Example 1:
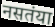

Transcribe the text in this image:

नसतंया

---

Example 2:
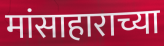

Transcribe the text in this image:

मांसाहाराच्या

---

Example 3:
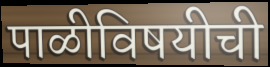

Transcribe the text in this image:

पाळीविषयीची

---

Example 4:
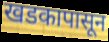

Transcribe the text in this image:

खडकापासून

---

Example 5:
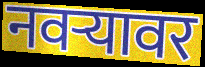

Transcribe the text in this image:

नवर्‍यावर